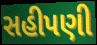
સહીપણી